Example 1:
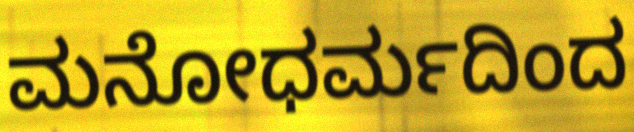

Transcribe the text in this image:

ಮನೋಧರ್ಮದಿಂದ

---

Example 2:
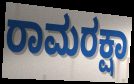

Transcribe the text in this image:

ರಾಮರಕ್ಷಾ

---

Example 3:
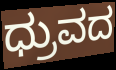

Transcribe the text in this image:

ಧ್ರುವದ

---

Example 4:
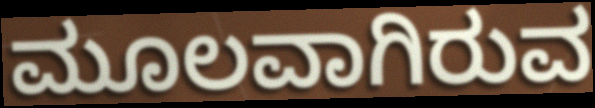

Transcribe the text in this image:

ಮೂಲವಾಗಿರುವ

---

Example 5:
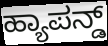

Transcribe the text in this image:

ಹ್ಯಾಪನ್ಡ್